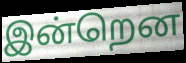
இன்றென